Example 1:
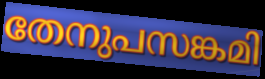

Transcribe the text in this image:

തേനുപസങ്കമി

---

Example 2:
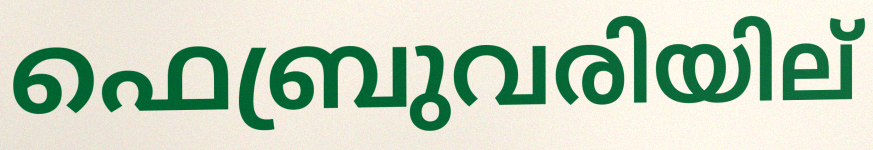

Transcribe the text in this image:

ഫെബ്രുവരിയില്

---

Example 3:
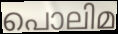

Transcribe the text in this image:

പൊലിമ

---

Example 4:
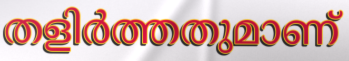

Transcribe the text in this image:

തളിർത്തതുമാണ്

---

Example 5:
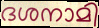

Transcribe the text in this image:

ദശനാമി